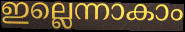
ഇല്ലെന്നാകാം